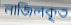
নাজিলকৃত